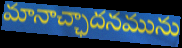
మానాచ్ఛాదనమును